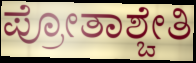
ಪ್ರೋತಾಶ್ಚೇತಿ